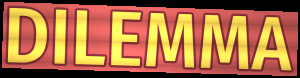
DILEMMA